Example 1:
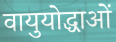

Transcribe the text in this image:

वायुयोद्धाओं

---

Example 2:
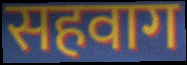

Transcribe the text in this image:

सहवाग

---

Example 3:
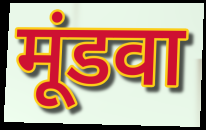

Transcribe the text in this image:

मूंडवा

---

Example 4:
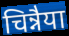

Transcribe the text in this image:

चिन्नैया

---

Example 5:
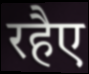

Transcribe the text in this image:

रहैए